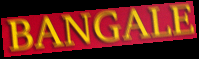
BANGALE